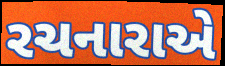
રચનારાએ